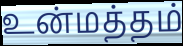
உன்மத்தம்